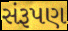
સંરૂપણ